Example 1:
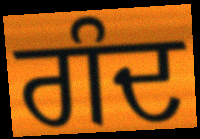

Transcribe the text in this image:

ਗੰਦ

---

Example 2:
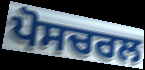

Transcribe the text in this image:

ਪੋਸਚਰਲ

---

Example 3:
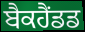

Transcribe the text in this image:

ਬੈਕਹੈਂਡਡ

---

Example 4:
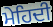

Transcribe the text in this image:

ਮੇਹਿਦੀ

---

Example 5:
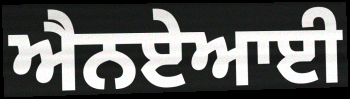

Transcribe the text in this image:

ਐਨਏਆਈ